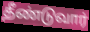
தீண்டுவார்